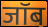
जॉब